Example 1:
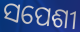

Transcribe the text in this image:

ସପେଶୀ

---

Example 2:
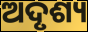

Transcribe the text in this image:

ଅଦୃଶ୍ୟ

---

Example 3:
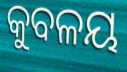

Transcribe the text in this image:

କୁବଳୟ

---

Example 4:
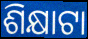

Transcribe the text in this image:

ଶିକ୍ଷାଟା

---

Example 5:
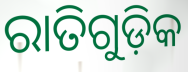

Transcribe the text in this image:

ରାତିଗୁଡ଼ିକ